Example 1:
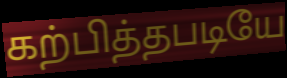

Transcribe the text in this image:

கற்பித்தபடியே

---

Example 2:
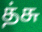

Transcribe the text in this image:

த்சு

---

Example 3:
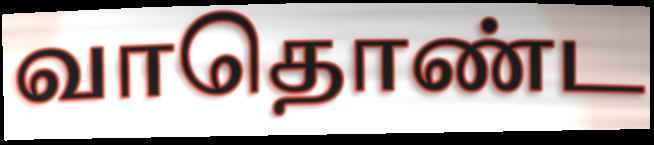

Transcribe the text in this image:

வாதொண்ட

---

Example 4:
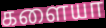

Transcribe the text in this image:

களையா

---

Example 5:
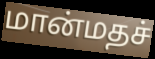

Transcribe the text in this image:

மான்மதச்